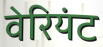
वेरियंट